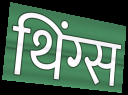
थिंग्स